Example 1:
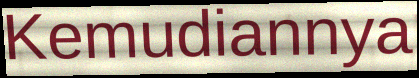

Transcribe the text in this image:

Kemudiannya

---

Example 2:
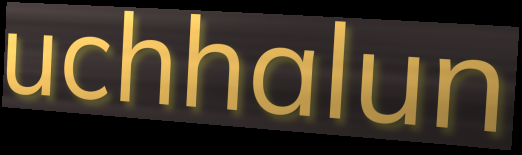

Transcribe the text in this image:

uchhalun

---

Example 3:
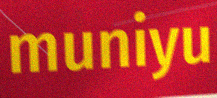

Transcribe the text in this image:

muniyu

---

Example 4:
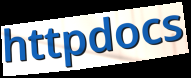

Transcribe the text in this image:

httpdocs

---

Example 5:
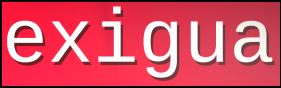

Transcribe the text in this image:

exigua